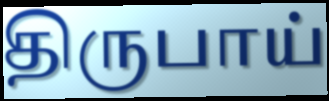
திருபாய்